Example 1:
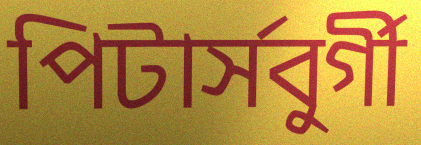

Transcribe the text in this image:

পিটার্সবুর্গী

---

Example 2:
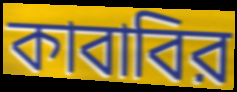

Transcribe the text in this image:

কাবাবির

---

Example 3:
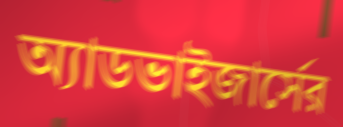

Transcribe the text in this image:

অ্যাডভাইজার্সের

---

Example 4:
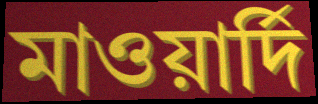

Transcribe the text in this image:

মাওয়ার্দি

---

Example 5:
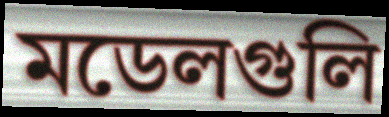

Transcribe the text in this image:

মডেলগুলি